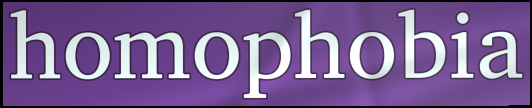
homophobia